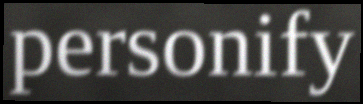
personify